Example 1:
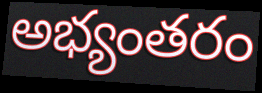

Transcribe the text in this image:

అభ్యంతరం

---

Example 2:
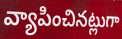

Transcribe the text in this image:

వ్యాపించినట్లుగా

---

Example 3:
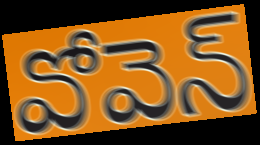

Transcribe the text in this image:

వోవెన్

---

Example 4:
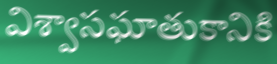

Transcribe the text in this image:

విశ్వాసఘాతుకానికి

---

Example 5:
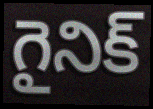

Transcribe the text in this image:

గైనిక్